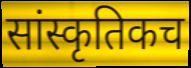
सांस्कृतिकच